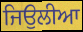
ਜਿਉਲੀਆ